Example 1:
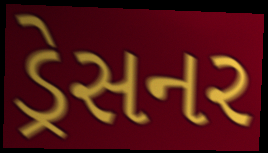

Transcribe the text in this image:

ડ્રેસનર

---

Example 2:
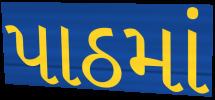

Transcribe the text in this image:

પાઠમાં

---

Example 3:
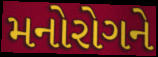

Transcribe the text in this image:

મનોરોગને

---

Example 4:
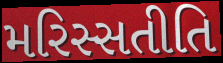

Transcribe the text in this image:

મરિસ્સતીતિ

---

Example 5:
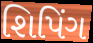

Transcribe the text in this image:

શિપિંગ